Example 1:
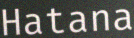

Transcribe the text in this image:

Hatana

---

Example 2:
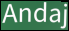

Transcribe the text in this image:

Andaj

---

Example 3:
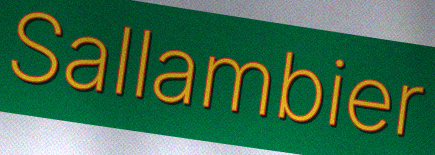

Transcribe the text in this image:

Sallambier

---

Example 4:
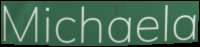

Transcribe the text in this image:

Michaela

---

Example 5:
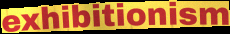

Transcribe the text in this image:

exhibitionism